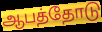
ஆபத்தோடு